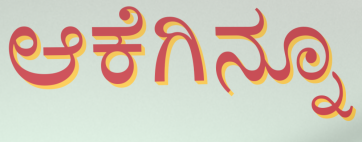
ಆಕೆಗಿನ್ನೂ